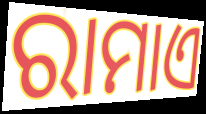
ରାମାଏ